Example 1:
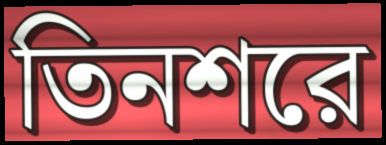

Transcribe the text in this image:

তিনশরে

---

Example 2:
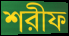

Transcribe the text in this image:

শরীফ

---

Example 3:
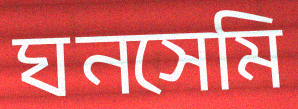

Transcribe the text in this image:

ঘনসেমি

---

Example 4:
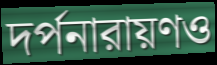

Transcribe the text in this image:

দর্পনারায়ণও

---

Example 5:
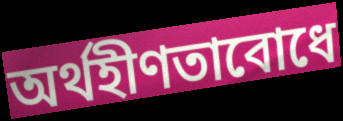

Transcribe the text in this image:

অর্থহীণতাবোধে